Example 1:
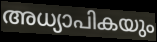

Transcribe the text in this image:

അധ്യാപികയും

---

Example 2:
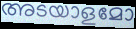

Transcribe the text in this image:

അടയാളമോ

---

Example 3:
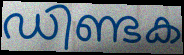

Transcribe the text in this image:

ഡിണ്ടക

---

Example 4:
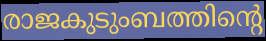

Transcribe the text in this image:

രാജകുടുംബത്തിന്റെ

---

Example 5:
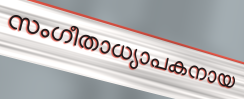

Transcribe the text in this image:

സംഗീതാധ്യാപകനായ